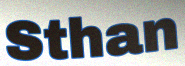
Sthan